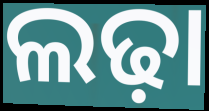
ଲଢ଼ା